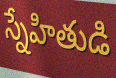
స్నేహితుడి